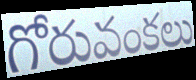
గోరువంకలు